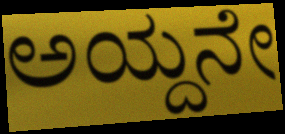
ಅಯ್ದನೇ